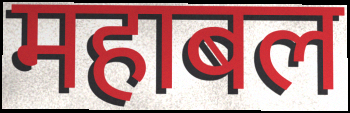
महाबल